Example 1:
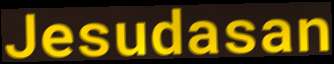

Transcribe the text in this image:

Jesudasan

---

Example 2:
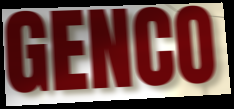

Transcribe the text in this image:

GENCO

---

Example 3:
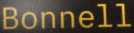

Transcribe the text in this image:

Bonnell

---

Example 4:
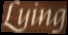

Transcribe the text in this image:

Lying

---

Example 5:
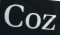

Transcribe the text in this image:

Coz